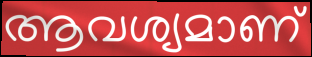
ആവശ്യമാണ്